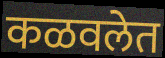
कळवलेत